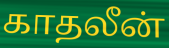
காதலீன்